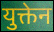
युक्तेन